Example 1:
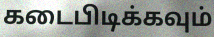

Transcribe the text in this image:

கடைபிடிக்கவும்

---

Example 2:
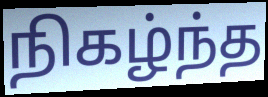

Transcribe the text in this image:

நிகழ்ந்த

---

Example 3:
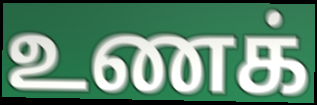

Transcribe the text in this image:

உணக்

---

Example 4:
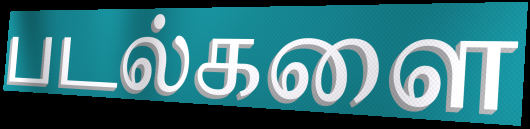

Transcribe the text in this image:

படல்களை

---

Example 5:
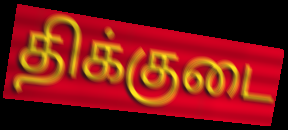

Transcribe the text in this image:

திக்குடை